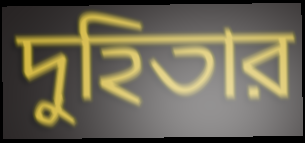
দুহিতার